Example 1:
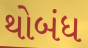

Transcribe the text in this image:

થોબંધ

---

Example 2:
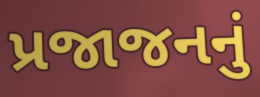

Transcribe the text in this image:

પ્રજાજનનું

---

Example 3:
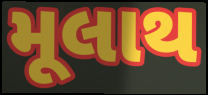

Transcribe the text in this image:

મૂલાથ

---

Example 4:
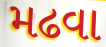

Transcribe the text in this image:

મઢવા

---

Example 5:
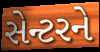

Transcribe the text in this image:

સેન્ટરને